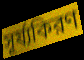
সূর্য্যকিরণ